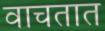
वाचतात